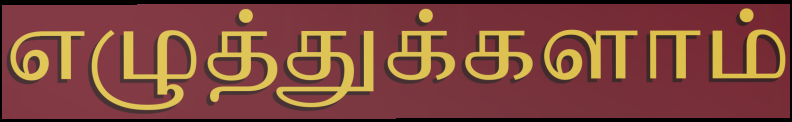
எழுத்துக்களாம்